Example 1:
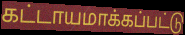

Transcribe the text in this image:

கட்டாயமாக்கப்பட்டு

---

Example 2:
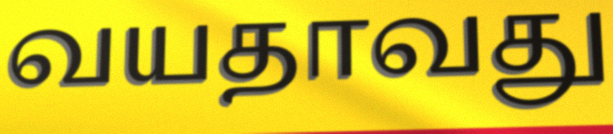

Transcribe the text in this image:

வயதாவது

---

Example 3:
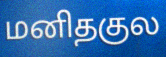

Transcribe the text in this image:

மனிதகுல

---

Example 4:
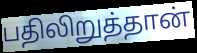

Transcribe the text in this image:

பதிலிறுத்தான்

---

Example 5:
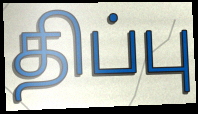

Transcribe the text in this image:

திப்பு